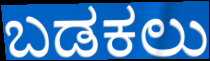
ಬಡಕಲು